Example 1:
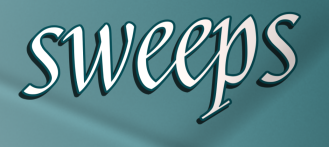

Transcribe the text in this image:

sweeps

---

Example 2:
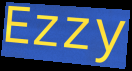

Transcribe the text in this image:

Ezzy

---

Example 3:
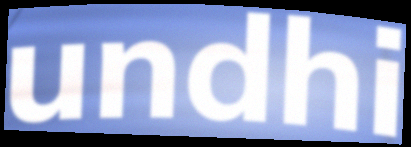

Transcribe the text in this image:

undhi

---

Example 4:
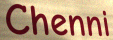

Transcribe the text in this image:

Chenni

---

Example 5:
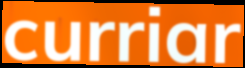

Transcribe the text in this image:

curriar